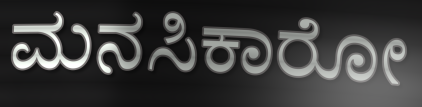
ಮನಸಿಕಾರೋ